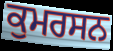
ਕੁਮਰਸਨ